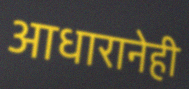
आधारानेही